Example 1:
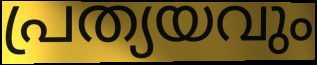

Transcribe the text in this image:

പ്രത്യയവും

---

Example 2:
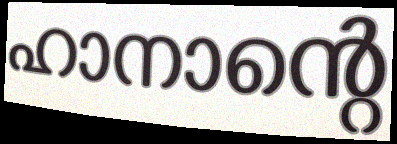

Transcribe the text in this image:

ഹാനാന്റെ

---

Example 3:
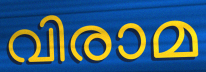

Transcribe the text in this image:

വിരാമ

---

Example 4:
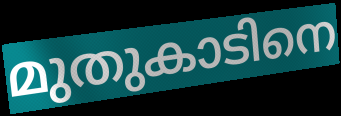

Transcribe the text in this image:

മുതുകാടിനെ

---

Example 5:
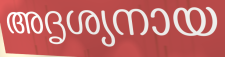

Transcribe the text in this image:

അദൃശ്യനായ